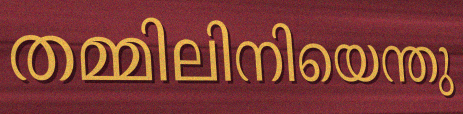
തമ്മിലിനിയെന്തു